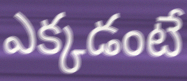
ఎక్కడంటే